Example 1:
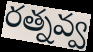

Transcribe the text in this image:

రత్నవ్వ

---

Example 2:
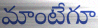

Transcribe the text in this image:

మాంటేగూ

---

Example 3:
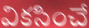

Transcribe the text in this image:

వికసించే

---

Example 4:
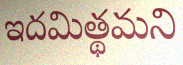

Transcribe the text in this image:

ఇదమిత్థమని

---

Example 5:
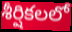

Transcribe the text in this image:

శీర్షికలలో